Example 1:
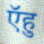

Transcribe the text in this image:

ऍहु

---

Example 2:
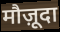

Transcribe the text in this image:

मौज़ूदा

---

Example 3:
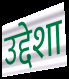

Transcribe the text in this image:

उद्देशा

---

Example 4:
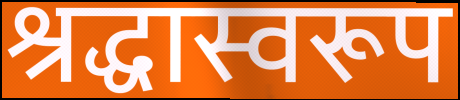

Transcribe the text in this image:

श्रद्धास्वरूप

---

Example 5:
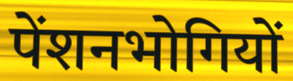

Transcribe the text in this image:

पेंशनभोगियों